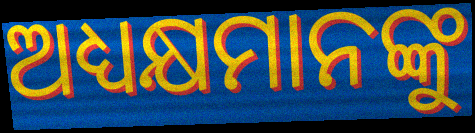
ଅଧ୍ୟକ୍ଷମାନଙ୍କୁ